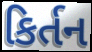
કિર્તન